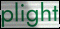
plight